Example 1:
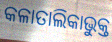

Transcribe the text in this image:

କଳାତାଲିକାଭୁକ୍ତ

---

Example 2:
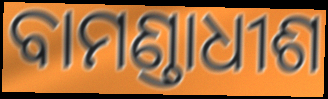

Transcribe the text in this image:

ବାମଣ୍ଡାଧୀଶ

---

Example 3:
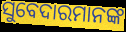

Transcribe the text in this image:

ସୁବେଦାରମାନଙ୍କ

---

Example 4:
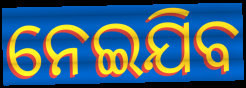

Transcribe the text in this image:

ନେଇଯିବ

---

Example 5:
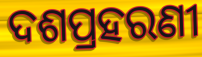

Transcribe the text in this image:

ଦଶପ୍ରହରଣୀ